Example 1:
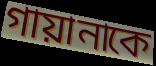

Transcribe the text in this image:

গায়ানাকে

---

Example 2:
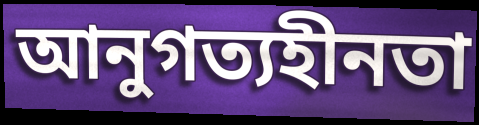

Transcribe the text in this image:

আনুগত্যহীনতা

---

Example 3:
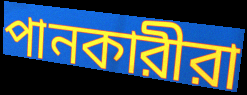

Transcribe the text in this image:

পানকারীরা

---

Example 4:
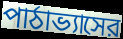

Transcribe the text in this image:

পাঠাভ্যাসের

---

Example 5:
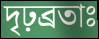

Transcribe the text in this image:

দৃঢ়ব্রতাঃ